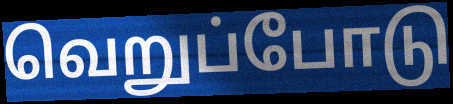
வெறுப்போடு